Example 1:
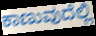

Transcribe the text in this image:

ಕಾಣುವುದೆಲ್ಲಿ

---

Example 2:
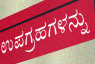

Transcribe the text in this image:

ಉಪಗ್ರಹಗಳನ್ನು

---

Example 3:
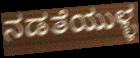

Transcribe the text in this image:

ನಡತೆಯುಳ್ಳ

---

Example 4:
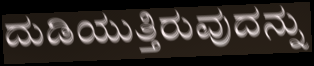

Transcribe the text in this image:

ದುಡಿಯುತ್ತಿರುವುದನ್ನು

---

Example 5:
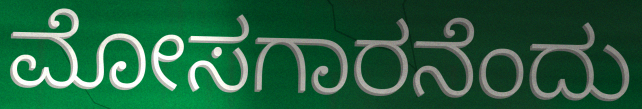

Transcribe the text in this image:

ಮೋಸಗಾರನೆಂದು